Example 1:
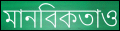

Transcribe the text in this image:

মানবিকতাও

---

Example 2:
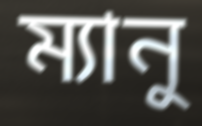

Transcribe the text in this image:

ম্যানু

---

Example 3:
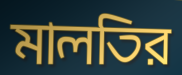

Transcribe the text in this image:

মালতির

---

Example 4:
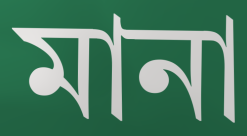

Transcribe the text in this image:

মানা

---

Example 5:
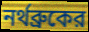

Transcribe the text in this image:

নর্থব্রুকের